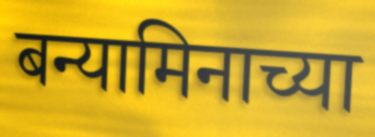
बन्यामिनाच्या